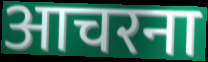
आचरना